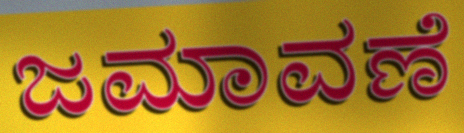
ಜಮಾವಣೆ